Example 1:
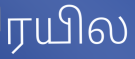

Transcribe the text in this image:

ரயில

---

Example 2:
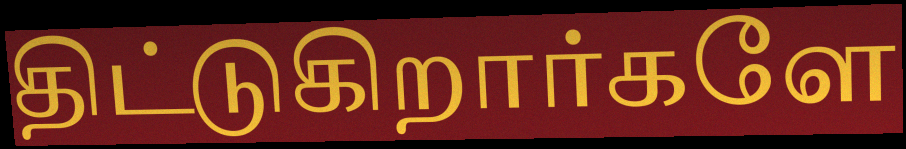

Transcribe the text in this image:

திட்டுகிறார்களே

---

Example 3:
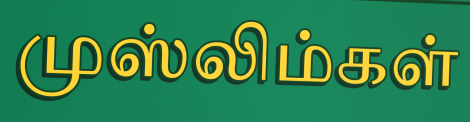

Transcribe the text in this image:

முஸ்லிம்கள்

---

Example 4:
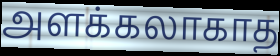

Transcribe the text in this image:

அளக்கலாகாத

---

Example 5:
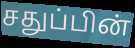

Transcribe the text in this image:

சதுப்பின்